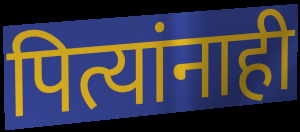
पित्यांनाही